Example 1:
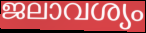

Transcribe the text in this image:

ജലാവശ്യം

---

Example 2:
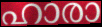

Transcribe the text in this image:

ഹാരാ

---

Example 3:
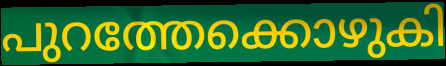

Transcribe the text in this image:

പുറത്തേക്കൊഴുകി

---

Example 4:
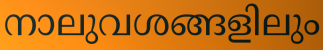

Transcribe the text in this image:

നാലുവശങ്ങളിലും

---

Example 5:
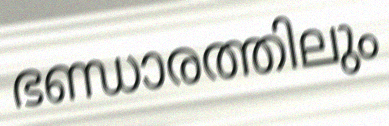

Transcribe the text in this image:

ഭണ്ഡാരത്തിലും